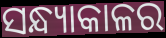
ସନ୍ଧ୍ୟାକାଳର